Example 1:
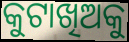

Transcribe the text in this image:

କୁଟାଖିଅକୁ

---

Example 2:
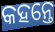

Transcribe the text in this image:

କହନ୍ତେ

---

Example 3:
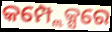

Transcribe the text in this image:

କମ୍ପ୍ଲେକ୍ସରେ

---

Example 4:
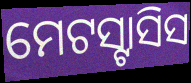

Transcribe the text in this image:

ମେଟସ୍ଟାସିସ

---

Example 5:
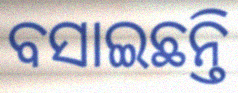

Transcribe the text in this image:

ବସାଇଛନ୍ତି